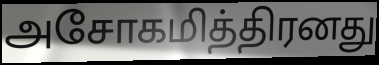
அசோகமித்திரனது